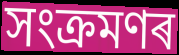
সংক্ৰমণৰ